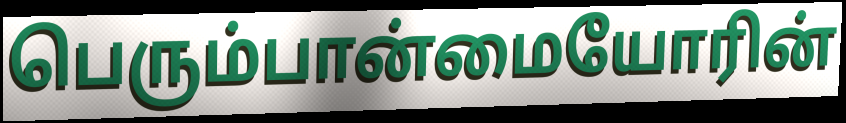
பெரும்பான்மையோரின்